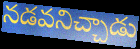
నడవనిచ్చాడు